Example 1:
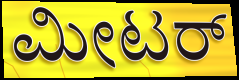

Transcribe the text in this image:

ಮೀಟರ್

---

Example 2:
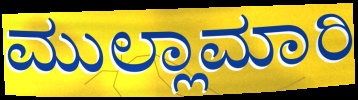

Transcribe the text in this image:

ಮುಲ್ಲಾಮಾರಿ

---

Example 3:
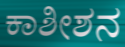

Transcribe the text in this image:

ಕಾಶೀಶನ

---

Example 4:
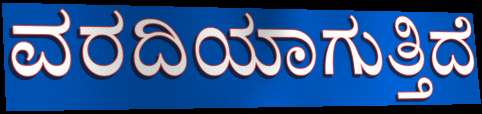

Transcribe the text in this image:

ವರದಿಯಾಗುತ್ತಿದೆ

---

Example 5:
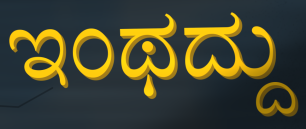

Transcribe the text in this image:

ಇಂಥದ್ದು